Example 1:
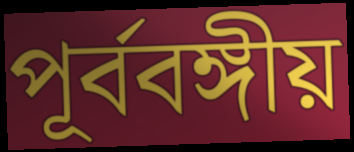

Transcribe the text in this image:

পূর্ববঙ্গীয়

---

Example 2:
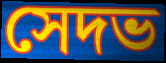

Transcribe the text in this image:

সেদভ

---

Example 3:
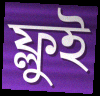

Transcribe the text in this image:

ফ্লুই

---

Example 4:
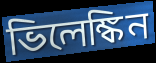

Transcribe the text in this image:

ভিলেঙ্কিন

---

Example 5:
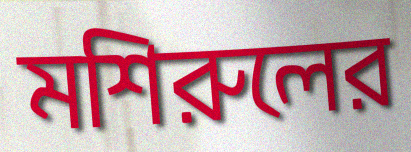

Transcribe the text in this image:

মশিরুলের